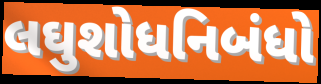
લઘુશોધનિબંધો